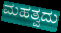
ಮಹತ್ವದು